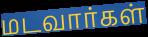
மடவார்கள்